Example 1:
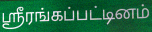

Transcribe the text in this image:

ஸ்ரீரங்கப்பட்டினம்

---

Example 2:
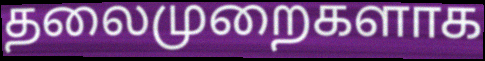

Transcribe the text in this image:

தலைமுறைகளாக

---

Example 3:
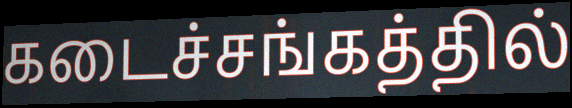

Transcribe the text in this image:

கடைச்சங்கத்தில்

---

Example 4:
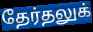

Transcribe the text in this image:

தேர்தலுக்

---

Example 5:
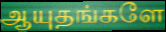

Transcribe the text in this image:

ஆயுதங்களே